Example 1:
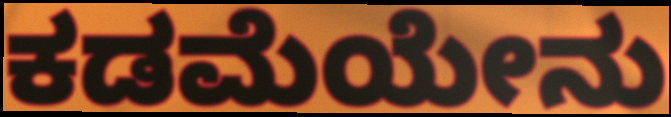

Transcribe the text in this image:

ಕಡಮೆಯೇನು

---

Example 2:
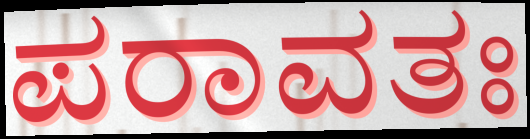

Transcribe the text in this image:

ಪರಾವತಃ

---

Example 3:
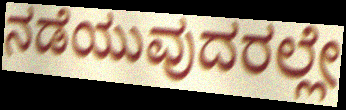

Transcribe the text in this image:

ನಡೆಯುವುದರಲ್ಲೇ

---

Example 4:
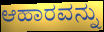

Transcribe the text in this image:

ಆಹಾರವನ್ನು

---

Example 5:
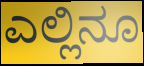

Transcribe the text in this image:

ಎಲ್ಲಿನೂ